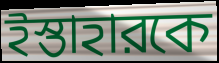
ইস্তাহারকে